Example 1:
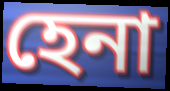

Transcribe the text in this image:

হেনা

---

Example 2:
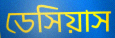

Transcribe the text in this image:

ডেসিয়াস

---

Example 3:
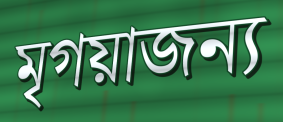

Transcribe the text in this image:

মৃগয়াজন্য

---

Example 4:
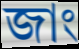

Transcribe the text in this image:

জাং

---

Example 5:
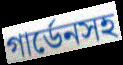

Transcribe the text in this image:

গার্ডেনসহ